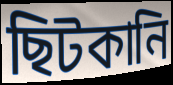
ছিটকানি